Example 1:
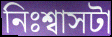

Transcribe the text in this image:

নিঃশ্বাসটা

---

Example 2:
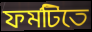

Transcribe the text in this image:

ফর্মটিতে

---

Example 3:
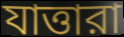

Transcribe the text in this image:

যাত্তারা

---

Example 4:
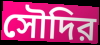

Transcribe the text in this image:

সৌদির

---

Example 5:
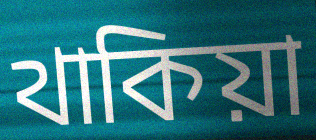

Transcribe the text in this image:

থাকিয়া